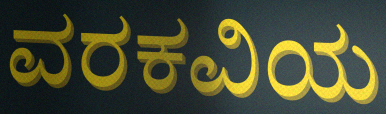
ವರಕವಿಯ